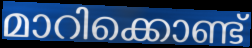
മാറിക്കൊണ്ട്